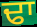
ਢਾ